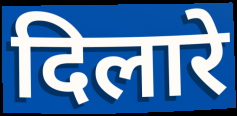
दिलारे